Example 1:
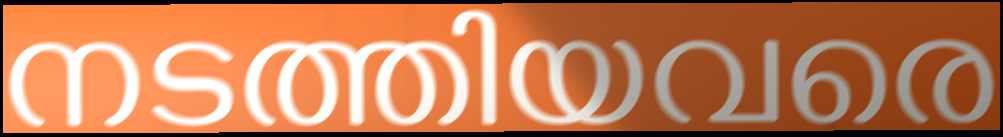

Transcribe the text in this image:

നടത്തിയവരെ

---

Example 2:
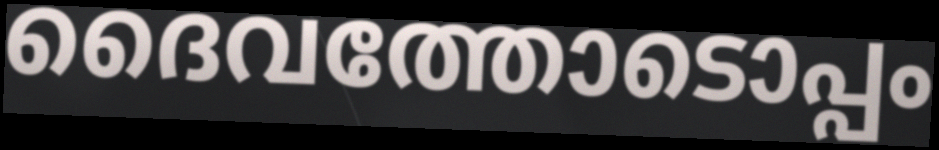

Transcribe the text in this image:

ദൈവത്തോടൊപ്പം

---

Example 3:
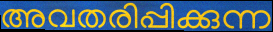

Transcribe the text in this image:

അവതരിപ്പിക്കുന്ന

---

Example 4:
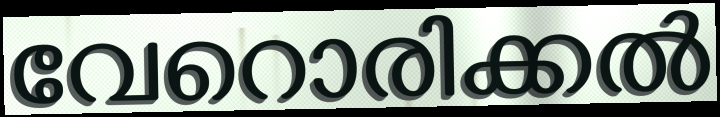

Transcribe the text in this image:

വേറൊരിക്കൽ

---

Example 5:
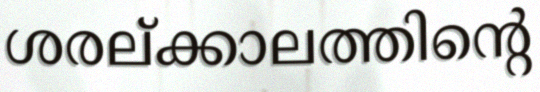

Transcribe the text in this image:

ശരല്ക്കാലത്തിന്റെ